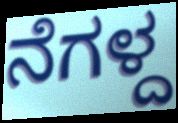
ನೆಗಳ್ದ